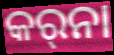
କର୍‍ନା